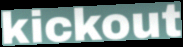
kickout